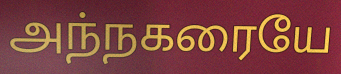
அந்நகரையே